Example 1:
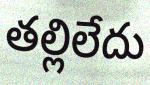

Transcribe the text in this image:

తల్లిలేదు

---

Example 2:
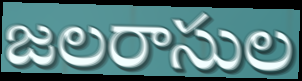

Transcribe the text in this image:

జలరాసుల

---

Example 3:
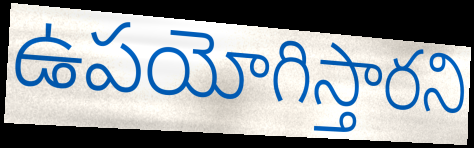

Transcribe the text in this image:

ఉపయోగిస్తారని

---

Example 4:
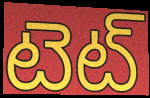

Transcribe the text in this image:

టెట్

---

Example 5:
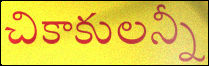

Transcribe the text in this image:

చికాకులన్నీ